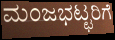
ಮಂಜಭಟ್ಟರಿಗೆ